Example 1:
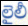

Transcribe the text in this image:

లైలీ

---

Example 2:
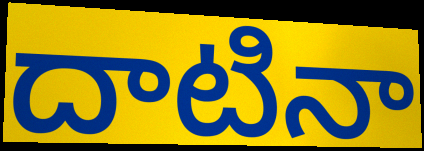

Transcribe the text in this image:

దాటినా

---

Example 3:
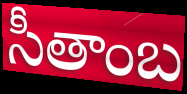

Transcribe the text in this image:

సీతాంబ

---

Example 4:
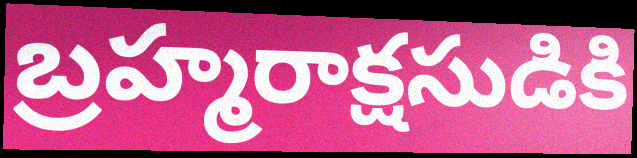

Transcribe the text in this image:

బ్రహ్మరాక్షసుడికి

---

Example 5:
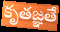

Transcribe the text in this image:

కృతజ్ఞతే